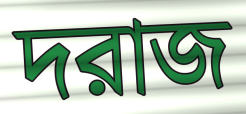
দরাজ